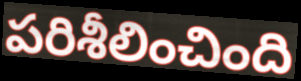
పరిశీలించింది